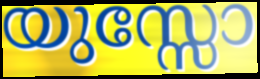
യുസ്സോ